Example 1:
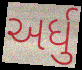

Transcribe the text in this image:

અર્ધુ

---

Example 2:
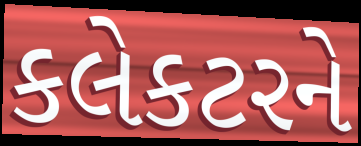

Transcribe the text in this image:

કલેકટરને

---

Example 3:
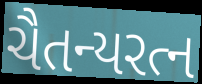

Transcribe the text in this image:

ચૈતન્યરત્ન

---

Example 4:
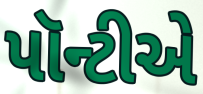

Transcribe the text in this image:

પૉન્ટીએ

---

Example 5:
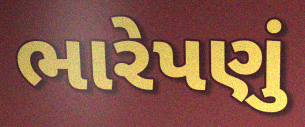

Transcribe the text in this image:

ભારેપણું